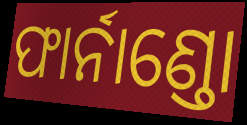
ଫାର୍ନାଣ୍ଡୋ